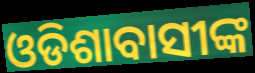
ଓଡିଶାବାସୀଙ୍କ